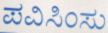
ಪವಿಸಿಂಸು